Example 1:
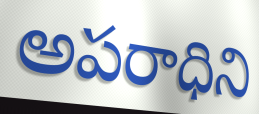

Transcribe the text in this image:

అపరాధిని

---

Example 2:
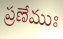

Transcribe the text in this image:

ప్రణేముః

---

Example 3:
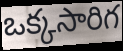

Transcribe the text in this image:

ఒక్కసారిగ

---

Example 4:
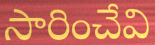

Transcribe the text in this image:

సారించేవి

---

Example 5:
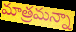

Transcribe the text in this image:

మాత్రమన్నా